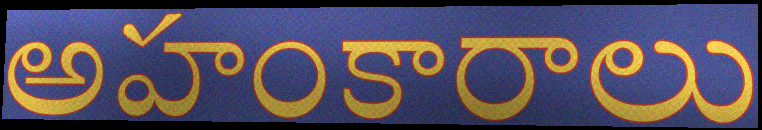
అహంకారాలు